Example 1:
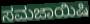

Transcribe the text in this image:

ಸಮಜಾಯಿಷಿ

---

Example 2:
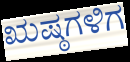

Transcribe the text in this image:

ಋಷ್ಠಗಳಿಗ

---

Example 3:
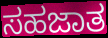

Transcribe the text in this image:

ಸಹಜಾತ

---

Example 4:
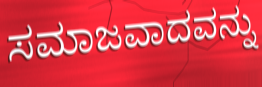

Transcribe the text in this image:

ಸಮಾಜವಾದವನ್ನು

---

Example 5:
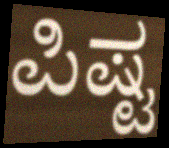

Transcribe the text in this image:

ಪಿಷ್ಟ